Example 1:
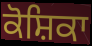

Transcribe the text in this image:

ਕੋਸ਼ਿਕਾ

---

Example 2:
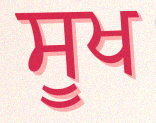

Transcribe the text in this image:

ਸੂਖ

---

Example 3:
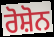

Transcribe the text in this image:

ਰੋਸ਼ੋਨ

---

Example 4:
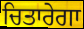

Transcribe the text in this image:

ਚਿਤਾਰੇਗਾ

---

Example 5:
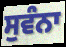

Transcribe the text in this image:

ਸੁਵੰਨਾ